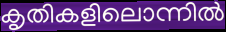
കൃതികളിലൊന്നിൽ